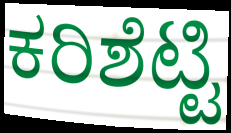
ಕರಿಶೆಟ್ಟಿ